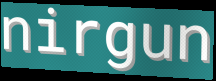
nirgun